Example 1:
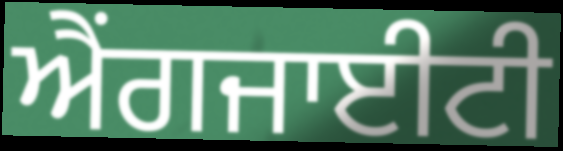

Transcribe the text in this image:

ਐਂਗਜਾਈਟੀ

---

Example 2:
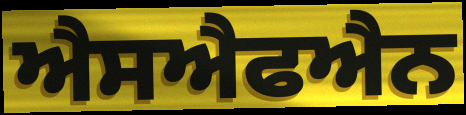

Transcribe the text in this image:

ਐਸਐਫਐਨ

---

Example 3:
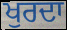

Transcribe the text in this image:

ਖੁਰਦਾ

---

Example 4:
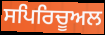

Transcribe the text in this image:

ਸਪਿਰਿਚੂਅਲ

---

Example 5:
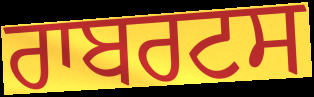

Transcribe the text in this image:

ਰਾਬਰਟਸ